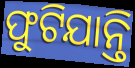
ଫୁଟିଯାନ୍ତି